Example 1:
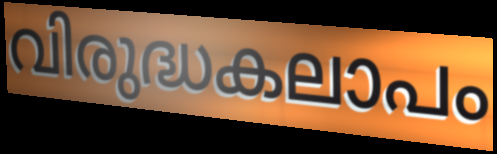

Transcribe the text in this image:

വിരുദ്ധകലാപം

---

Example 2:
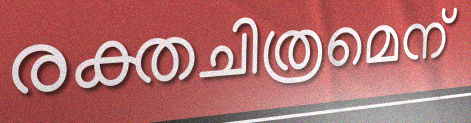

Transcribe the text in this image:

രക്തചിത്രമെന്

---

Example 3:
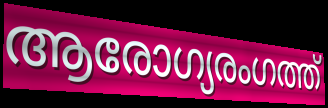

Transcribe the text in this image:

ആരോഗ്യരംഗത്ത്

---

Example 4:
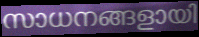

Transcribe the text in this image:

സാധനങ്ങളായി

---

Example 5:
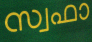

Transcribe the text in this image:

സ്വഫാ